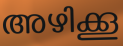
അഴിക്കൂ